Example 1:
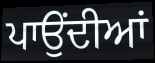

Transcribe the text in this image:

ਪਾਉਂਦੀਆਂ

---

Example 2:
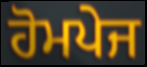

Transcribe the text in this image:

ਹੋਮਪੇਜ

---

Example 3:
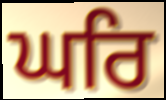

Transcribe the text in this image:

ਘਰਿ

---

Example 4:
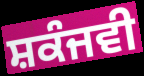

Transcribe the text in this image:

ਸ਼ਕੰਜਵੀ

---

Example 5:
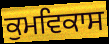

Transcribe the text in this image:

ਕੁਮਵਿਕਾਸ